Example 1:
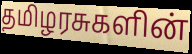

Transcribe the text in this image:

தமிழரசுகளின்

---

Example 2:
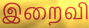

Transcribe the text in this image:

இறைவி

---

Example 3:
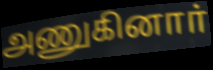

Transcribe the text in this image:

அணுகினார்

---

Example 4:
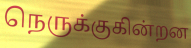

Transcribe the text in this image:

நெருக்குகின்றன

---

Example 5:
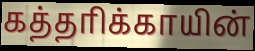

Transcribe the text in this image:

கத்தரிக்காயின்